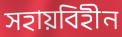
সহায়বিহীন